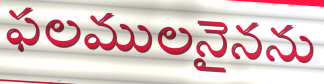
ఫలములనైనను